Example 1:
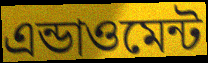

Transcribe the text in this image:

এন্ডাওমেন্ট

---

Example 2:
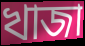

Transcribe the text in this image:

খাজা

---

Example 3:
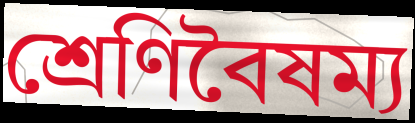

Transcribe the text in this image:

শ্রেণিবৈষম্য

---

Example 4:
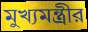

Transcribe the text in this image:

মুখ্যমন্ত্রীর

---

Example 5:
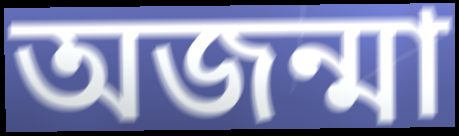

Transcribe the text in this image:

অজন্মা